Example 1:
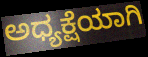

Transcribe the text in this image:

ಅಧ್ಯಕ್ಷೆಯಾಗಿ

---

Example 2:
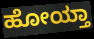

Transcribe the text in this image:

ಹೋಯ್ತಾ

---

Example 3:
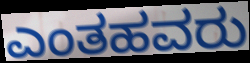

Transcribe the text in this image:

ಎಂತಹವರು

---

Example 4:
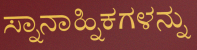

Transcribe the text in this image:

ಸ್ನಾನಾಹ್ನಿಕಗಳನ್ನು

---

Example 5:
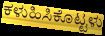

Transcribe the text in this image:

ಕಳುಹಿಸಿಕೊಟ್ಟಳು